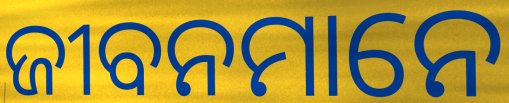
ଜୀବନମାନେ